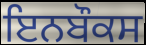
ਇਨਬੌਕਸ